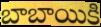
బాబాయికి